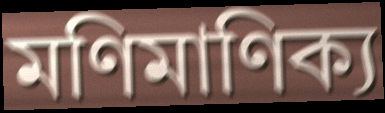
মণিমাণিক্য